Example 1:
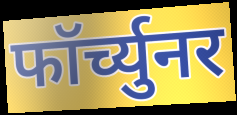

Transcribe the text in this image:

फॉर्च्युनर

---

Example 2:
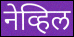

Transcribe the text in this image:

नेव्हिल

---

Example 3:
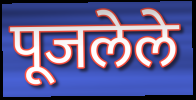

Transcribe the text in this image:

पूजलेले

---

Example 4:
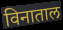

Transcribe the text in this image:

विनाताल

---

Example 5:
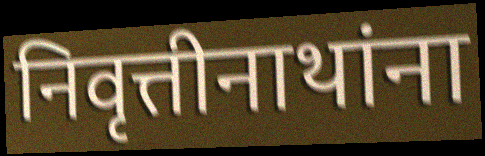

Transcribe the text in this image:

निवृत्तीनाथांना